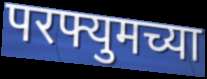
परफ्युमच्या